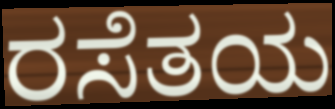
ರಸೆತಯ